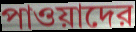
পাওয়াদের